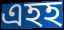
এহহ